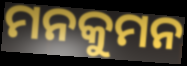
ମନକୁମନ